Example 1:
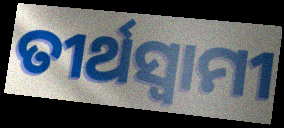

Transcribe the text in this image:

ତୀର୍ଥସ୍ୱାମୀ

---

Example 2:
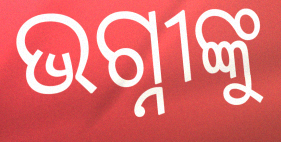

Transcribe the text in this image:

ଭଗ୍ନୀଙ୍କୁ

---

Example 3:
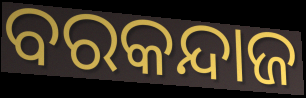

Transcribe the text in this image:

ବରକନ୍ଦାଜ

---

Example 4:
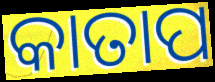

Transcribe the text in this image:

କାତାପ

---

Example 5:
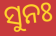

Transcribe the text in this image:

ସୁନଃ